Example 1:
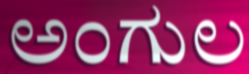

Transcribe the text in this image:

ಅಂಗುಲ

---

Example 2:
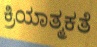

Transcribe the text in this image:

ಕ್ರಿಯಾತ್ಮಕತೆ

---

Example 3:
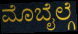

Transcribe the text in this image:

ಮೊಬೈಲ್ಗೆ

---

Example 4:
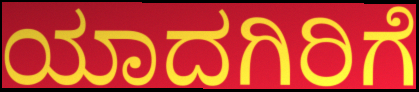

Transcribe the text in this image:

ಯಾದಗಿರಿಗೆ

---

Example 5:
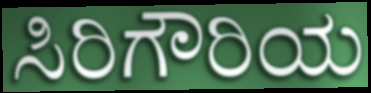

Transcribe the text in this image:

ಸಿರಿಗೌರಿಯ